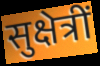
सुक्षेत्रीं